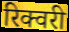
रिक्वरी